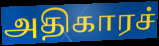
அதிகாரச்